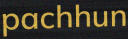
pachhun